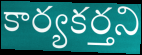
కార్యకర్తని